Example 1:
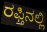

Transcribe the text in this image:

ರಫ್ತಿನಲ್ಲಿ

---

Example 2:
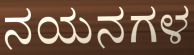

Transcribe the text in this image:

ನಯನಗಳ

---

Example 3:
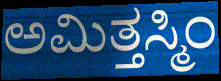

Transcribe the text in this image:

ಅಮಿತ್ತಸ್ಮಿಂ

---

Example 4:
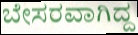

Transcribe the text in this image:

ಬೇಸರವಾಗಿದ್ದ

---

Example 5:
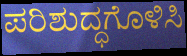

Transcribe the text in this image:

ಪರಿಶುದ್ಧಗೊಳಿಸಿ